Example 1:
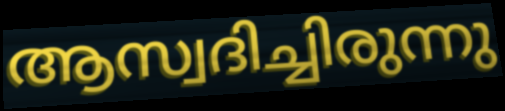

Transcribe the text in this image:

ആസ്വദിച്ചിരുന്നു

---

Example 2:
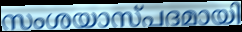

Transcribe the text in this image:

സംശയാസ്പദമായി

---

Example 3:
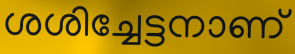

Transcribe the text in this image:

ശശിച്ചേട്ടനാണ്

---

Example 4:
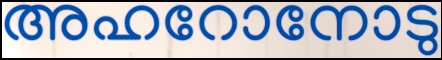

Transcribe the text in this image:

അഹറോനോടു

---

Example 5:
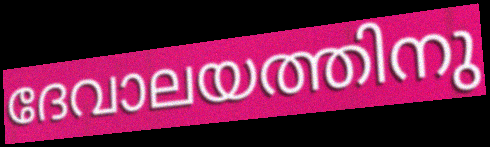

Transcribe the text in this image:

ദേവാലയത്തിനു